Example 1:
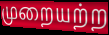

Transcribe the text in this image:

முறையற்ற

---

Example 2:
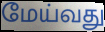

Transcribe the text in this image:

மேய்வது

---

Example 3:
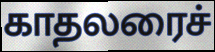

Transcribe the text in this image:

காதலரைச்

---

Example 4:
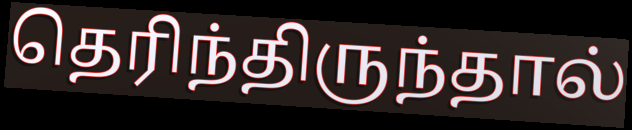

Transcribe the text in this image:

தெரிந்திருந்தால்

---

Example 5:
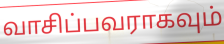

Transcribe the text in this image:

வாசிப்பவராகவும்